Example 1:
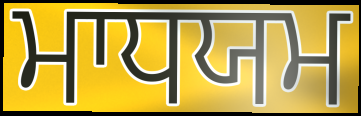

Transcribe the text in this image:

ਮਾਧਯਮ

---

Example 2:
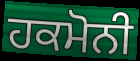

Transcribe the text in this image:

ਹਕਮੋਨੀ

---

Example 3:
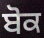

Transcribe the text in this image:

ਬੋਕ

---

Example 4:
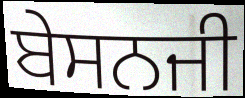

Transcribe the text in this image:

ਬੇਸਨਜੀ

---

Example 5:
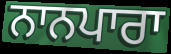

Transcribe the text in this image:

ਨਾਨਪਾਰਾ